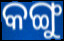
କଙ୍ଗୁ